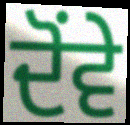
ਦੋਂਵੇ